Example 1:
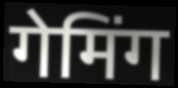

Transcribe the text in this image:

गेमिंग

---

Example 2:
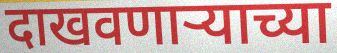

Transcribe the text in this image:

दाखवणाऱ्याच्या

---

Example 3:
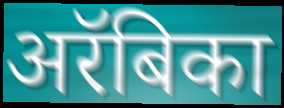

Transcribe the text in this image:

अरॅबिका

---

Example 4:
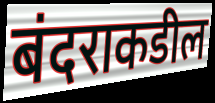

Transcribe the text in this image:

बंदराकडील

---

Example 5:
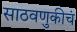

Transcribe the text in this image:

साठवणुकीचं